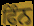
ਫਿੰਨ